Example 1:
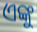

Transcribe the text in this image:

ଏଙ୍କୁ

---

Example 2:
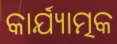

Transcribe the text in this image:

କାର୍ଯ୍ୟାତ୍ମକ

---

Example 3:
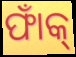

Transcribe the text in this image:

ଫାଁକ୍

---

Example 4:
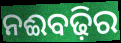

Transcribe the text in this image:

ନଈବଢ଼ିର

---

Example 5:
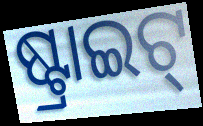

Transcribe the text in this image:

ଷ୍ଟ୍ରାଇଟ୍